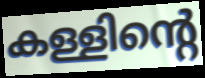
കള്ളിന്റെ